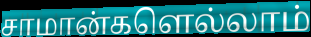
சாமான்களெல்லாம்